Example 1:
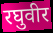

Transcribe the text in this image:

रघुवीर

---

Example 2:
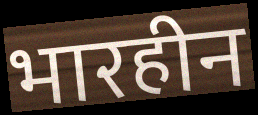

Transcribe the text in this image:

भारहीन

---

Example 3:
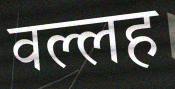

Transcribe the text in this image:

वल्लह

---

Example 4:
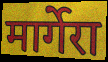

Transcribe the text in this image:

मार्गेरा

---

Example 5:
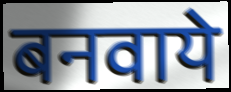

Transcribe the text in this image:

बनवाये